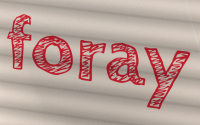
foray